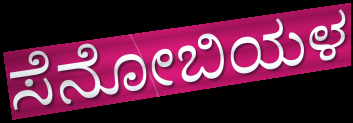
ಸೆನೋಬಿಯಳ